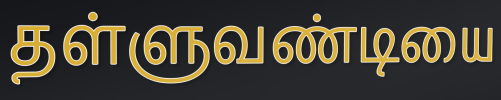
தள்ளுவண்டியை